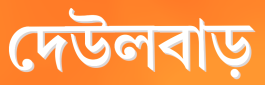
দেউলবাড়